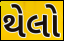
થેલો